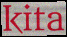
kita